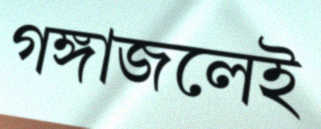
গঙ্গাজলেই